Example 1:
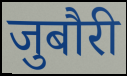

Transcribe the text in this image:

जुबौरी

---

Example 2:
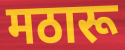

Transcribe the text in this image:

मठारू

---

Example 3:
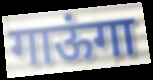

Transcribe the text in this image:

गाऊंगा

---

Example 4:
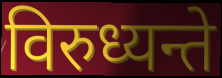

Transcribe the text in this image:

विरुध्यन्ते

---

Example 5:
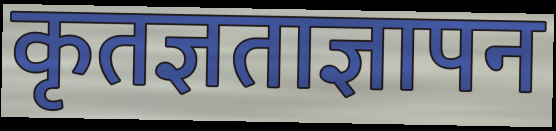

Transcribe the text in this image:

कृतज्ञताज्ञापन